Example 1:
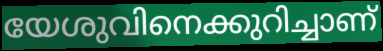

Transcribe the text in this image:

യേശുവിനെക്കുറിച്ചാണ്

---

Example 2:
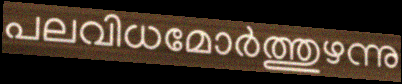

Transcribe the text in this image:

പലവിധമോർത്തുഴന്നു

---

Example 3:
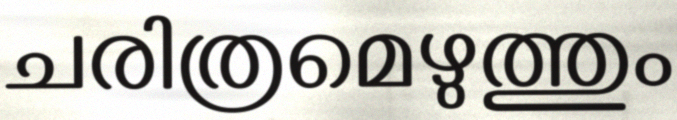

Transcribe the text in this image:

ചരിത്രമെഴുത്തും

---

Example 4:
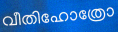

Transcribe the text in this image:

വീതിഹോത്രോ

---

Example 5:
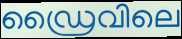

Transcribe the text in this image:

ഡ്രൈവിലെ